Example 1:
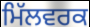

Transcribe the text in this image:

ਮਿੱਲਵਰਕ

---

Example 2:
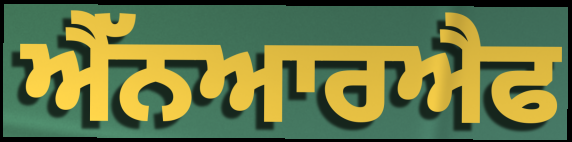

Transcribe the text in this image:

ਐੱਨਆਰਐਫ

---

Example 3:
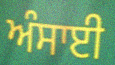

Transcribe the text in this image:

ਅੰਸਾਈ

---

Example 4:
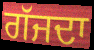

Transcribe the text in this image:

ਗੱਜਦਾ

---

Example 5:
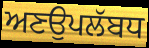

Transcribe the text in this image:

ਅਣਉਪਲੱਬਧ